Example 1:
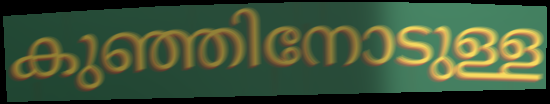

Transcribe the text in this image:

കുഞ്ഞിനോടുള്ള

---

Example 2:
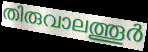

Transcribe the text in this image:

തിരുവാലത്തൂർ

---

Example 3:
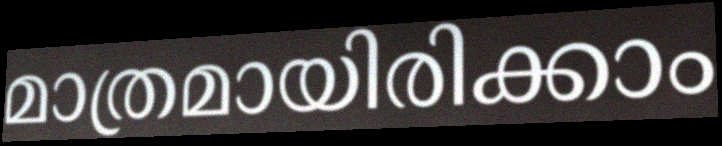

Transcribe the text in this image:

മാത്രമായിരിക്കാം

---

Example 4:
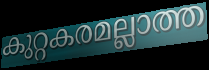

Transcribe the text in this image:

കുറ്റകരമല്ലാത്ത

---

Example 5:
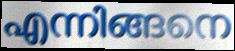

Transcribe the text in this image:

എന്നിങ്ങനെ